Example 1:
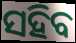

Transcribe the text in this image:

ସହିବ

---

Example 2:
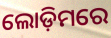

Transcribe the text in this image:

ଲୋଡ଼ିମରେ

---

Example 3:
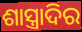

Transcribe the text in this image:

ଶାସ୍ତ୍ରାଦିର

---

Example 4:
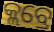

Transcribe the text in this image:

କ୍ଲବ୍ରେ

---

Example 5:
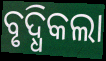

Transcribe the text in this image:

ବୃଦ୍ଧିକଲା